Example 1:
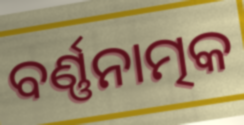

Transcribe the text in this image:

ବର୍ଣ୍ଣନାତ୍ମକ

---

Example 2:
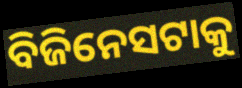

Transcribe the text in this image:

ବିଜିନେସଟାକୁ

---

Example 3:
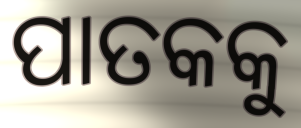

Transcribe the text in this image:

ପାତକକୁ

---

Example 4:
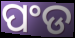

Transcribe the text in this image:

ପଂଡ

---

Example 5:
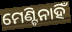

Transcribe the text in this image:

ମେଣ୍ଟିନାହିଁ